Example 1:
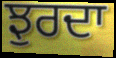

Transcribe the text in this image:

ਝੁਰਦਾ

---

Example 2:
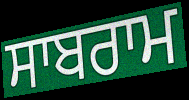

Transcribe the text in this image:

ਸਾਬਰਾਮ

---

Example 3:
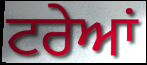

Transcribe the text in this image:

ਟਰੇਆਂ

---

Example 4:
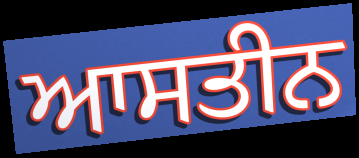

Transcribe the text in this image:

ਆਸਤੀਨ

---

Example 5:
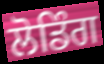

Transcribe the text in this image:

ਲੋਡਿੰਗ